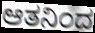
ಆತನಿಂದ